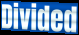
Divided